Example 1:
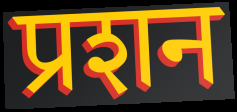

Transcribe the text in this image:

प्रशन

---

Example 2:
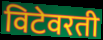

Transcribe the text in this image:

विटेवरती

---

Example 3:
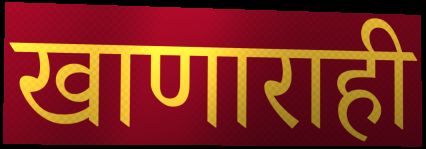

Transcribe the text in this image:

खाणाराही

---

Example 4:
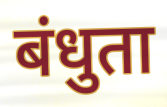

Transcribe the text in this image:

बंधुता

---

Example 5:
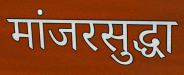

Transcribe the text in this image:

मांजरसुद्धा